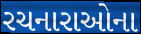
રચનારાઓના